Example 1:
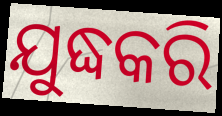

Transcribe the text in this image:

ଯୁଦ୍ଧକରି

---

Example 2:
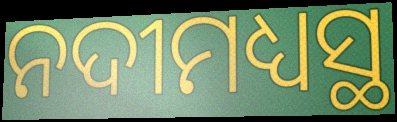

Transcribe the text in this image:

ନଦୀମଧ୍ୟସ୍ଥ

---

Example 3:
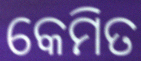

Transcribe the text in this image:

କେମିତ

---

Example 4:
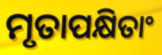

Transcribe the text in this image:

ମୃତାପକ୍ଷିତାଂ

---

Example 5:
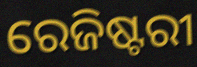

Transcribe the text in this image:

ରେଜିଷ୍ଟରୀ